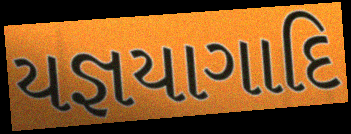
યજ્ઞયાગાદિ